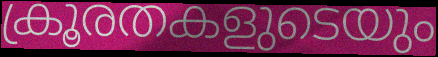
ക്രൂരതകളുടെയും